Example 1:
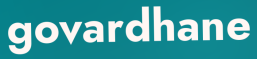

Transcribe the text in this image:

govardhane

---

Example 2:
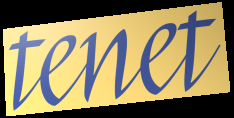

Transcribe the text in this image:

tenet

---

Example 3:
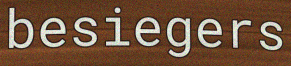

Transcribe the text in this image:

besiegers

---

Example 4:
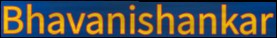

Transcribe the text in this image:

Bhavanishankar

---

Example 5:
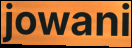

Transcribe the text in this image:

jowani